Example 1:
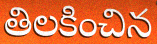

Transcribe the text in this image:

తిలకించిన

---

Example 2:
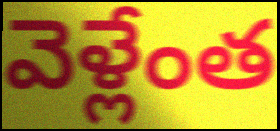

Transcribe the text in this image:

వెళ్లేంత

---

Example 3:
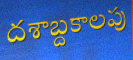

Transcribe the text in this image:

దశాబ్దకాలపు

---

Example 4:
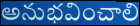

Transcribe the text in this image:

అనుభవించాలి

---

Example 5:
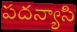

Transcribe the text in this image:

పదన్యాసి